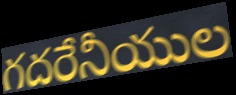
గదరేనీయుల